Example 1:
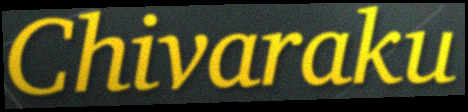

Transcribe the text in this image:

Chivaraku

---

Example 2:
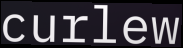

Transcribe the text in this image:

curlew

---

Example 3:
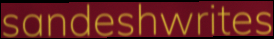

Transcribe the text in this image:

sandeshwrites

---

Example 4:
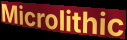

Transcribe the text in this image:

Microlithic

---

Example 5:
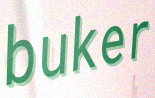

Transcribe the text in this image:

buker